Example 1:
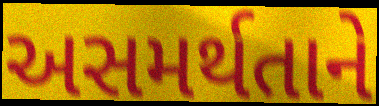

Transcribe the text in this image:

અસમર્થતાને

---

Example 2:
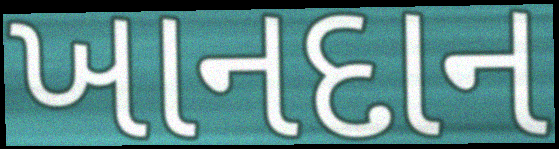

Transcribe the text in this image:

ખાનદાન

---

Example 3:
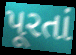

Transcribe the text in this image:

પૂરતાં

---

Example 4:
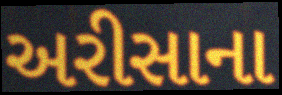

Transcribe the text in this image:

અરીસાના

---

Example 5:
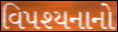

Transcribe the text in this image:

વિપશ્યનાનો